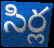
సిర్ల